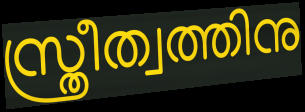
സ്ത്രീത്വത്തിനു